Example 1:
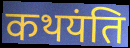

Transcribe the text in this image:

कथयंति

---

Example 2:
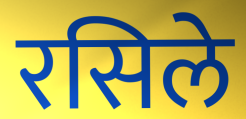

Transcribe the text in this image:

रसिले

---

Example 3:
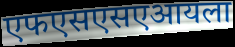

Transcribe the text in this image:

एफएसएसएआयला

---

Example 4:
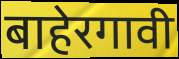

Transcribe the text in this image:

बाहेरगावी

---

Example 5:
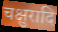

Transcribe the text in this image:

चक्षुरादि